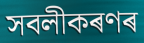
সবলীকৰণৰ